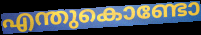
എന്തുകൊണ്ടോ